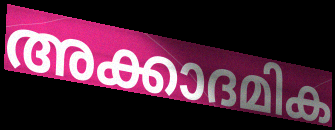
അക്കാദമിക